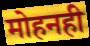
मोहनही